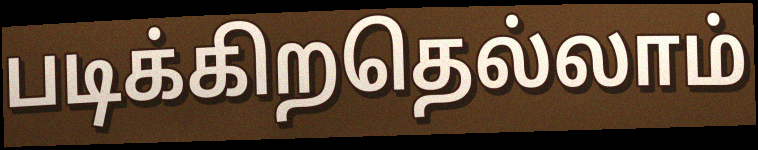
படிக்கிறதெல்லாம்